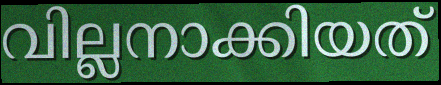
വില്ലനാക്കിയത്